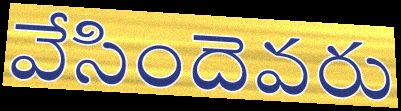
వేసిందెవరు